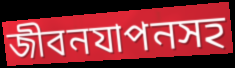
জীবনযাপনসহ